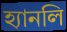
হ্যানলি